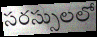
సరస్సులలో